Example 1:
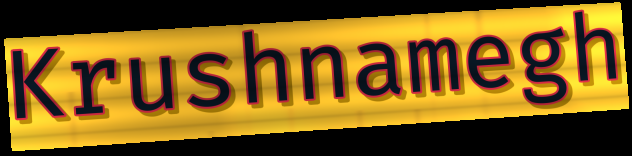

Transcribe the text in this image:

Krushnamegh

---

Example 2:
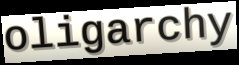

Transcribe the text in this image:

oligarchy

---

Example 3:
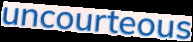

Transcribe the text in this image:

uncourteous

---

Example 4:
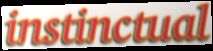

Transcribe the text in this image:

instinctual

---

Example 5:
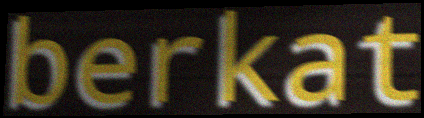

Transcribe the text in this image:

berkat